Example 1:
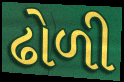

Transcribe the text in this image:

ઢોળી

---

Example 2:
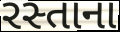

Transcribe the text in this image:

રસ્તાના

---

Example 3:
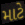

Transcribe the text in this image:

માટે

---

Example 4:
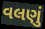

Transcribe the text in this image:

વલણું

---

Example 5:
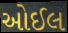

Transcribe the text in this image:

ઓઈલ